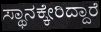
ಸ್ಥಾನಕ್ಕೇರಿದ್ದಾರೆ